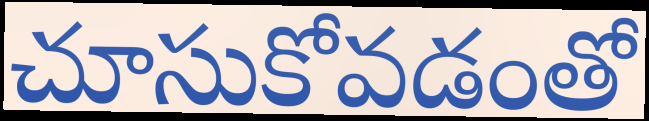
చూసుకోవడంతో